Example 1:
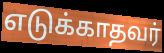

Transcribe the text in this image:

எடுக்காதவர்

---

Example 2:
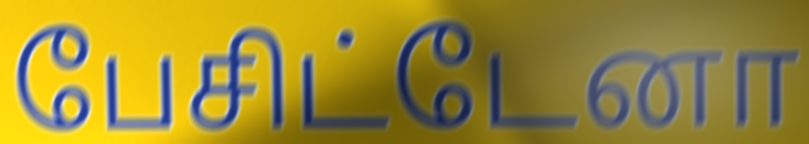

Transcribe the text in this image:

பேசிட்டேனா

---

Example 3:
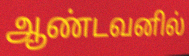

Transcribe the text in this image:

ஆண்டவனில்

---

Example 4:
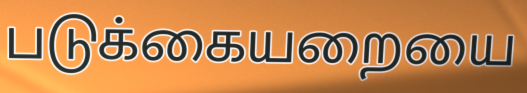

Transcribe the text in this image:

படுக்கையறையை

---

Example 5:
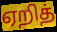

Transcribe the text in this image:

ஏறித்